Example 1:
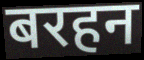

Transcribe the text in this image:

बरहन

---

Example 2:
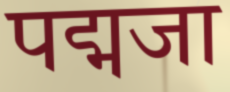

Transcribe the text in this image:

पद्मजा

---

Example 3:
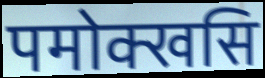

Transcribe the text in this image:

पमोक्खसि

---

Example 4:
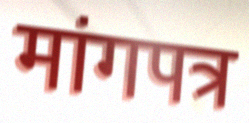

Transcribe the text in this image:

मांगपत्र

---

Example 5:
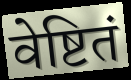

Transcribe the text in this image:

वेष्टितं